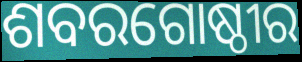
ଶବରଗୋଷ୍ଠୀର